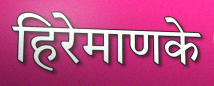
हिरेमाणके